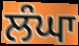
ਲੰਘਾ